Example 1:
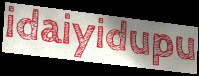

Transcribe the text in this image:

idaiyidupu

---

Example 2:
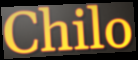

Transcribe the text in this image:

Chilo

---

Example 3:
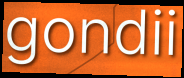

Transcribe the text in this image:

gondii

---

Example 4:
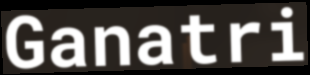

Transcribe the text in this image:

Ganatri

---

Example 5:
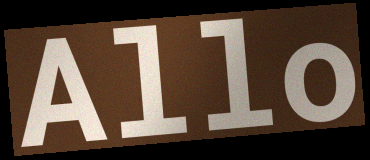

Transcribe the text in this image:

Allo